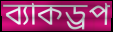
ব্যাকড্রপ